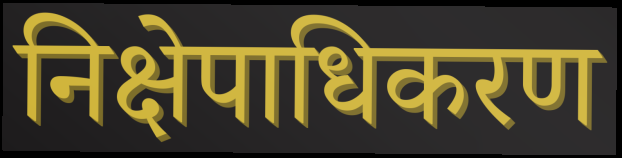
निक्षेपाधिकरण